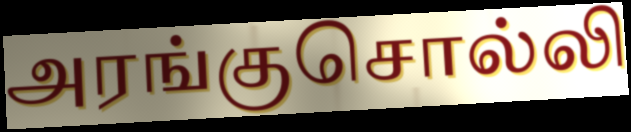
அரங்குசொல்லி